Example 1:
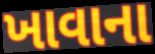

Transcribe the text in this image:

ખાવાના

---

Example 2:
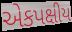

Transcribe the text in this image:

એકપક્ષીય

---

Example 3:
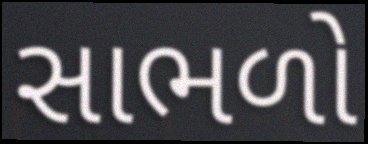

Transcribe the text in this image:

સાભળો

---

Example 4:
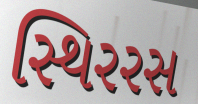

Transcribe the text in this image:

સ્થિરરસ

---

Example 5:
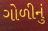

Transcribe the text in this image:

ગોળીનું